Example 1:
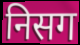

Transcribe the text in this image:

निसग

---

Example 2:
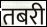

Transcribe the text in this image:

तबरी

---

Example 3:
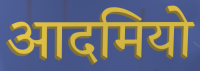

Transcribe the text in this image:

आदमियो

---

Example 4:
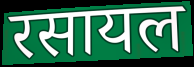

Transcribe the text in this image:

रसायल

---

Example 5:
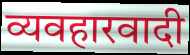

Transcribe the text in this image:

व्यवहारवादी